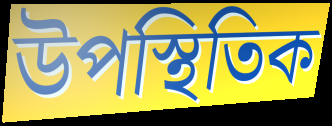
উপস্থিতিক